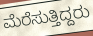
ಮೆರೆಸುತ್ತಿದ್ದರು